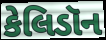
કેલિડૉન